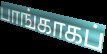
பாங்காகப்